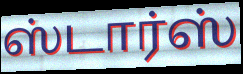
ஸ்டார்ஸ்